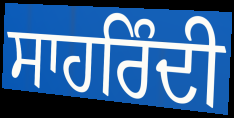
ਸਾਹਰਿੰਦੀ